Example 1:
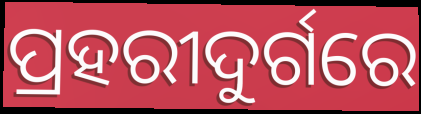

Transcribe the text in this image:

ପ୍ରହରୀଦୁର୍ଗରେ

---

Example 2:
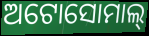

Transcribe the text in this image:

ଅଟୋସୋମାଲ୍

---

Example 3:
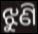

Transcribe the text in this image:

ଝୁଣି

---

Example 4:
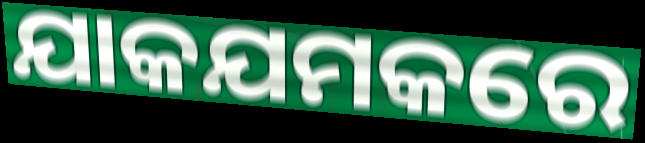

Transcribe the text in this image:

ଯାକଯମକରେ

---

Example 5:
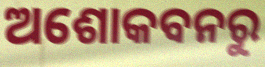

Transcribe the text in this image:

ଅଶୋକବନରୁ